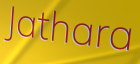
Jathara